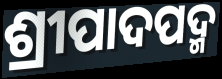
ଶ୍ରୀପାଦପଦ୍ମ